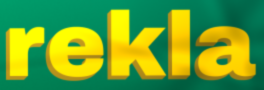
rekla